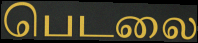
பெடலை